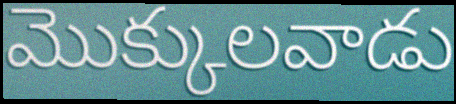
మొక్కులవాడు